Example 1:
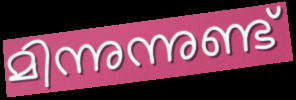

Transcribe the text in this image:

മിന്നുന്നുണ്ട്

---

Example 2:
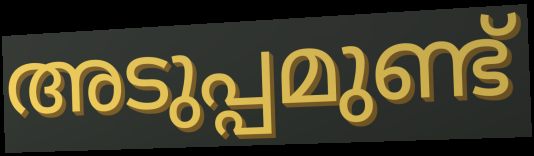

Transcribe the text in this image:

അടുപ്പമുണ്ട്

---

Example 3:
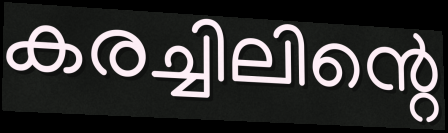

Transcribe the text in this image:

കരച്ചിലിന്റെ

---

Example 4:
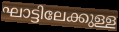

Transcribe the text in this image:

ഘാട്ടിലേക്കുള്ള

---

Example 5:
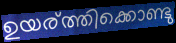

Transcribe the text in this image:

ഉയര്ത്തിക്കൊണ്ടു